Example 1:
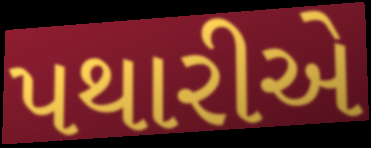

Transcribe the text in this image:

પથારીએ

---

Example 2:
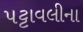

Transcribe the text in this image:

પટ્ટાવલીના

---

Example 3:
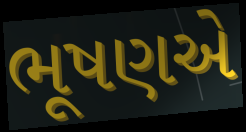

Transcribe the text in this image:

ભૂષણએ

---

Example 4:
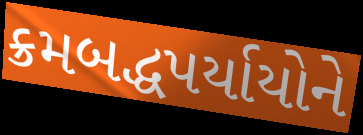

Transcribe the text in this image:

ક્રમબદ્ધપર્યાયોને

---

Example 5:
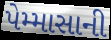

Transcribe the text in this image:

પેમ્માસાની